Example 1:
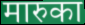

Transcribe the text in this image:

मारुका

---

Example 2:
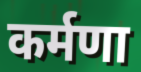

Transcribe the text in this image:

कर्मणा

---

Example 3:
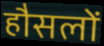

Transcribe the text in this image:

हौसलों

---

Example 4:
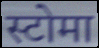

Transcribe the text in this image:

स्टोमा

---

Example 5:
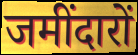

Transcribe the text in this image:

जमींदारों